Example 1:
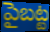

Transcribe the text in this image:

పైబట్ట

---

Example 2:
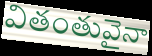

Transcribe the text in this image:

వితంతువైనా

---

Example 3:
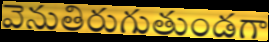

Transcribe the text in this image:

వెనుతిరుగుతుండగా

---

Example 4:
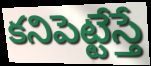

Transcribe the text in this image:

కనిపెట్టేస్తే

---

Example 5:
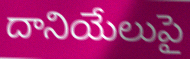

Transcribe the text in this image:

దానియేలుపై